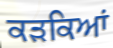
ਕੜਕਿਆਂ